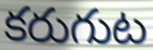
కరుగుట